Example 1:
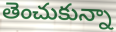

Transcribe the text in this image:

తెంచుకున్నా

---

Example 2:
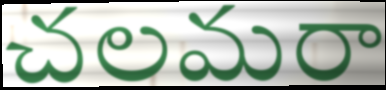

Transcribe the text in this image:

చలమరా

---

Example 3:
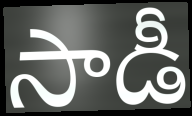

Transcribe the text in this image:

సాడీ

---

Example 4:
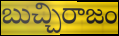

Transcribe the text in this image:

బుచ్చిరాజం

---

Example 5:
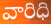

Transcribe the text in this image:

వారిధి